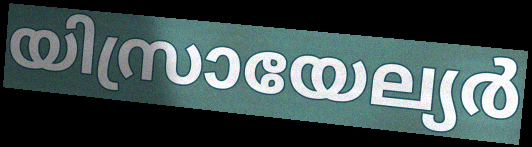
യിസ്രായേല്യർ